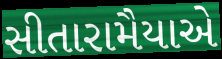
સીતારામૈયાએ